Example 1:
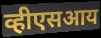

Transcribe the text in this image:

व्हीएसआय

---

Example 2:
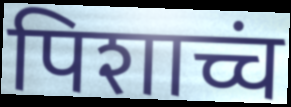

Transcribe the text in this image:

पिशाच्चं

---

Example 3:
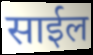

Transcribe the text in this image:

साईल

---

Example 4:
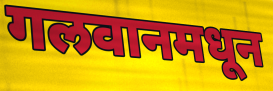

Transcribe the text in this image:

गलवानमधून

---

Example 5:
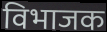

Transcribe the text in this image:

विभाजक